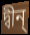
দ্বীন্